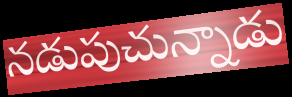
నడుపుచున్నాడు